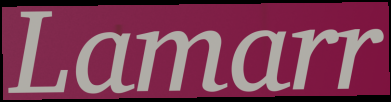
Lamarr